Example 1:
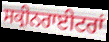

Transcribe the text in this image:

ਸਕ੍ਰੀਨਰਾਈਟਰਾਂ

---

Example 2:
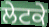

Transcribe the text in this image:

ਲੇਟਕੇ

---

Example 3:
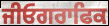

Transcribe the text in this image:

ਜੀਓਗਰਾਫਿਕ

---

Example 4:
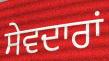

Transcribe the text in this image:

ਸੇਵਦਾਰਾਂ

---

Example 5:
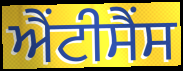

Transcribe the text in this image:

ਐਂਟੀਸੈਂਸ